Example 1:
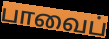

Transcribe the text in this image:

பாவைப்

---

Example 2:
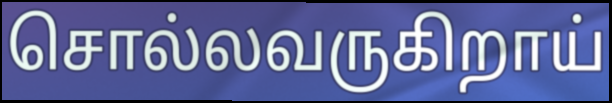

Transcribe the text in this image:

சொல்லவருகிறாய்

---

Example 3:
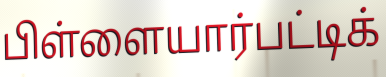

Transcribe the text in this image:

பிள்ளையார்பட்டிக்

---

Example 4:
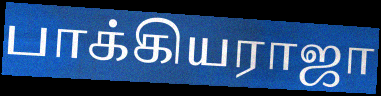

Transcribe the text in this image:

பாக்கியராஜா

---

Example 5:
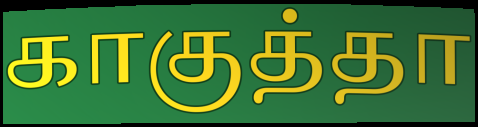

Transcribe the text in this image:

காகுத்தா